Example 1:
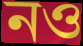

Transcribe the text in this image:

নও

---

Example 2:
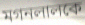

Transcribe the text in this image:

মগনলালকে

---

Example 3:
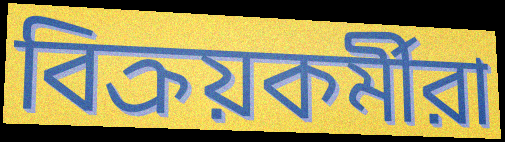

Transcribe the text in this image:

বিক্রয়কর্মীরা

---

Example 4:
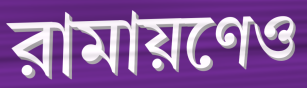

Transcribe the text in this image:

রামায়ণেও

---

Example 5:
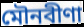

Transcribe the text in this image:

মৌনবীণা